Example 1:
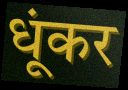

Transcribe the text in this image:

धूंकर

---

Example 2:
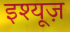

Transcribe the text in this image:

इश्यूज़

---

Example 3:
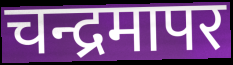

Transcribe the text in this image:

चन्द्रमापर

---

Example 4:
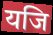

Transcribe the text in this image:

यजि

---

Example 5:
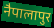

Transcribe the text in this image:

नैपालापुर